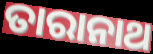
ତାରାନାଥ